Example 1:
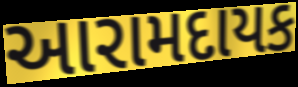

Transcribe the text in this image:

આરામદાયક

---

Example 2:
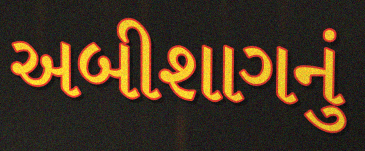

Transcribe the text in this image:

અબીશાગનું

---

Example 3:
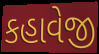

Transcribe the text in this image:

કહાવેજી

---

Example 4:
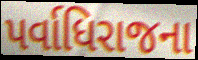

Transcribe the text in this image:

પર્વાધિરાજના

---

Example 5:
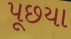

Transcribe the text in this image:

પૂછયા